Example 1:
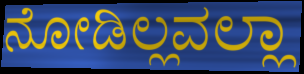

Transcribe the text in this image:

ನೋಡಿಲ್ಲವಲ್ಲಾ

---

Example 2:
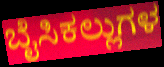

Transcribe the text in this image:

ಬೈಸಿಕಲ್ಲುಗಳ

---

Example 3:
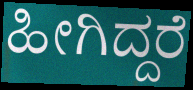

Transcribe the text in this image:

ಹೀಗಿದ್ದರೆ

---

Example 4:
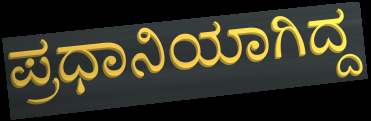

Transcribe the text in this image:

ಪ್ರಧಾನಿಯಾಗಿದ್ದ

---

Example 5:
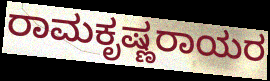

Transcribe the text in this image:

ರಾಮಕೃಷ್ಣರಾಯರ